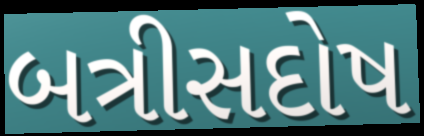
બત્રીસદોષ